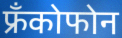
फ्रँकोफोन